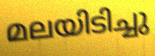
മലയിടിച്ചു